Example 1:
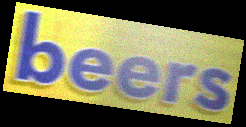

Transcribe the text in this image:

beers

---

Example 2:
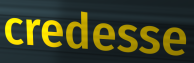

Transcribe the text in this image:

credesse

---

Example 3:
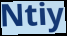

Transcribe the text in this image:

Ntiy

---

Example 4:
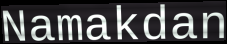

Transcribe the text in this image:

Namakdan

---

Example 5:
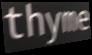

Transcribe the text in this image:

thyme